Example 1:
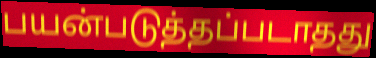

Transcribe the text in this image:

பயன்படுத்தப்படாதது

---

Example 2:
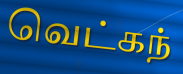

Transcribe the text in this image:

வெட்கந்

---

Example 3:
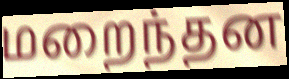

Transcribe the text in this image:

மறைந்தன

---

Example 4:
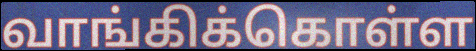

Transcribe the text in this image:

வாங்கிக்கொள்ள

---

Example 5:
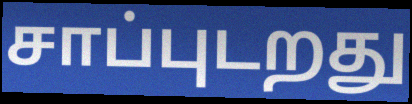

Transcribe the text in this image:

சாப்புடறது